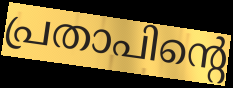
പ്രതാപിന്റെ